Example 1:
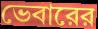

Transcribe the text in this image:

ভেবারের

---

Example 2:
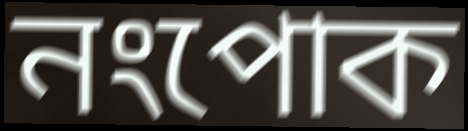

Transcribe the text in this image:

নংপোক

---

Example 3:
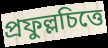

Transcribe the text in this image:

প্রফুল্লচিত্তে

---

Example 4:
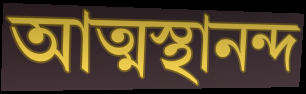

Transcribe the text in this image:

আত্মস্থানন্দ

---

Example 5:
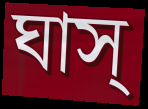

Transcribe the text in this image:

ঘাস্